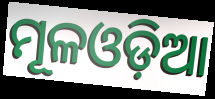
ମୂଳଓଡ଼ିଆ